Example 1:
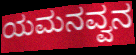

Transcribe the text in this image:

ಯಮನವ್ವನ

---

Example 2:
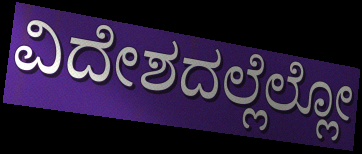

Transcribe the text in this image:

ವಿದೇಶದಲ್ಲೆಲ್ಲೋ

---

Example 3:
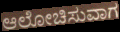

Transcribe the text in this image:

ಆಲೋಚಿಸುವಾಗ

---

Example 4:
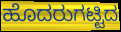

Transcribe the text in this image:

ಹೊದರುಗಟ್ಟಿದ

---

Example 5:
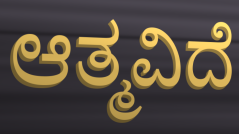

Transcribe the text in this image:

ಆತ್ಮವಿದೆ